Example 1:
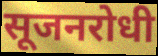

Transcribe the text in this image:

सूजनरोधी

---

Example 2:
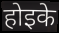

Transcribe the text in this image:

होइके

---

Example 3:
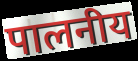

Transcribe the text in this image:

पालनीय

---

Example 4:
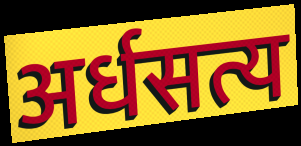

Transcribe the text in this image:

अर्धसत्य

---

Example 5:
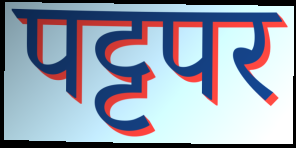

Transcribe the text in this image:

पट्टपर